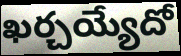
ఖర్చయ్యేదో